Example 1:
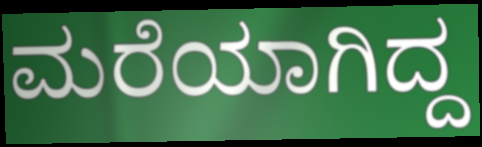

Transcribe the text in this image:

ಮರೆಯಾಗಿದ್ದ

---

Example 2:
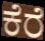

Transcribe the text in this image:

ಕೆರೆ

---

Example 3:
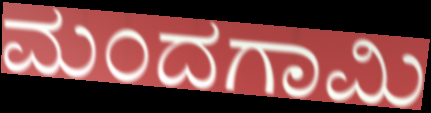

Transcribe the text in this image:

ಮಂದಗಾಮಿ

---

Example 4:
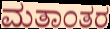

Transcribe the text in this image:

ಮತಾಂತರ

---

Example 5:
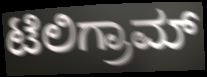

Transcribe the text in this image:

ಟೆಲಿಗ್ರಾಮ್